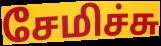
சேமிச்சு